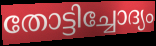
തോട്ടിച്ചോദ്യം